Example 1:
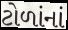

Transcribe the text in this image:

ટોળાંનાં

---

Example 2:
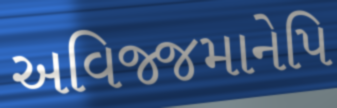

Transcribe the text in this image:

અવિજ્જમાનેપિ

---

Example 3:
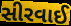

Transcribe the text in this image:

સીરવાઈ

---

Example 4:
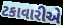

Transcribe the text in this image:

ટકાવારીએ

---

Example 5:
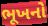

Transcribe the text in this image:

ભૂખનો